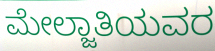
ಮೇಲ್ಜಾತಿಯವರ